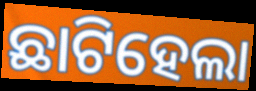
ଛାଟିହେଲା